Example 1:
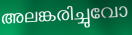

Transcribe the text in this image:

അലങ്കരിച്ചുവോ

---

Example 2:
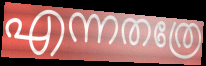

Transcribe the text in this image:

എന്നതത്രേ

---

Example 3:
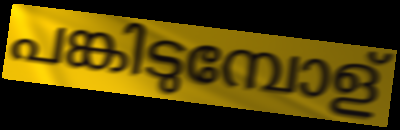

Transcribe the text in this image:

പങ്കിടുമ്പോള്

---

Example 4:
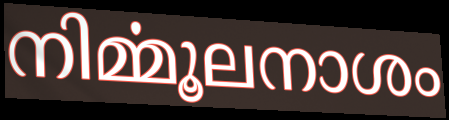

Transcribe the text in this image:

നിൎമ്മൂലനാശം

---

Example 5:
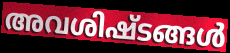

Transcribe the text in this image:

അവശിഷ്ടങ്ങൾ